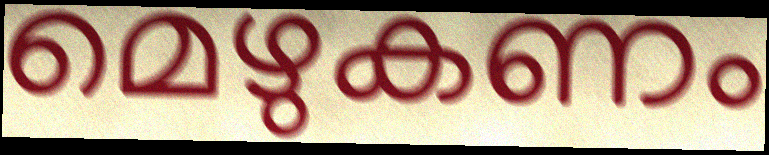
മെഴുകണം